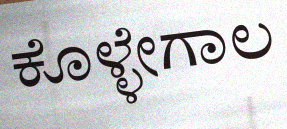
ಕೊಳ್ಳೇಗಾಲ